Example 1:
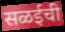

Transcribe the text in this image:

सळईची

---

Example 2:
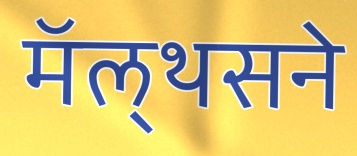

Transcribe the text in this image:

मॅल्थसने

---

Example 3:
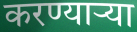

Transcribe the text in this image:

करण्यार्‍या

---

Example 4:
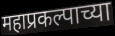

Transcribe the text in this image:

महाप्रकल्पाच्या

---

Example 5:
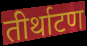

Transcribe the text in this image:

तीर्थाटण